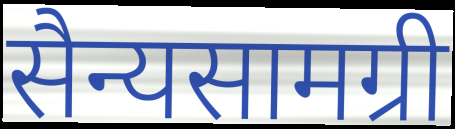
सैन्यसामग्री